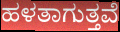
ಹಳತಾಗುತ್ತವೆ